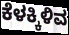
ಕೆಳಕ್ಕಿಳಿವ